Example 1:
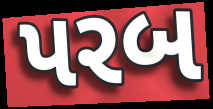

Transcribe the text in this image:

પરબ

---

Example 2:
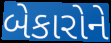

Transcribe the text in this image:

બેકારોને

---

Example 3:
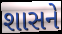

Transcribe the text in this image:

શાસને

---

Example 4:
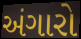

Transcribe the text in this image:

અંગારો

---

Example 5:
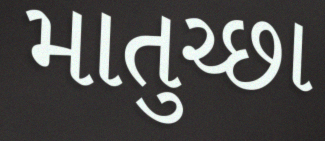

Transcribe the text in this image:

માતુચ્છા